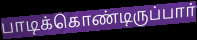
பாடிக்கொண்டிருப்பார்